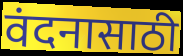
वंदनासाठी